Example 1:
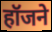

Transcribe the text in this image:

हॉजने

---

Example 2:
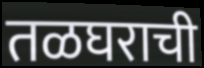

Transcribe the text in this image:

तळघराची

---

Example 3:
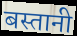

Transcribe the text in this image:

बस्तानी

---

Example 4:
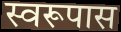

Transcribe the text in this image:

स्वरूपास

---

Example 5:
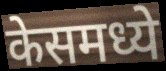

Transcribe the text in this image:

केसमध्ये